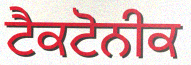
ਟੈਕਟੋਨੀਕ